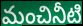
మంచినీటి